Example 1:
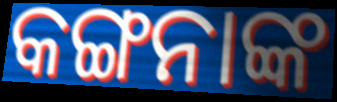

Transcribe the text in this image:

କଙ୍ଗନାଙ୍କ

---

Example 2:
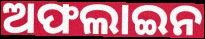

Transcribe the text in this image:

ଅଫଲାଇନ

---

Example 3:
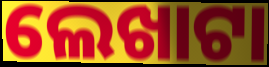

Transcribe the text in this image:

ଲେଖାଟା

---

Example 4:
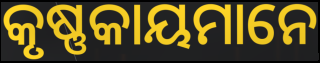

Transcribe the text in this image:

କୃଷ୍ଣକାୟମାନେ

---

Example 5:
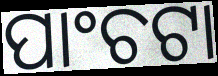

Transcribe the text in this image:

ପାଂଚଟା